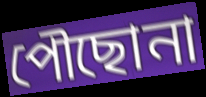
পৌছোনা